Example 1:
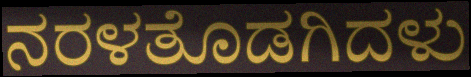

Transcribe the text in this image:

ನರಳತೊಡಗಿದಳು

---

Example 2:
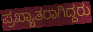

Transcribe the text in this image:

ಪ್ರಖ್ಯಾತರಾಗಿದ್ದರು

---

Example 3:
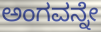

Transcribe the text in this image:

ಅಂಗವನ್ನೇ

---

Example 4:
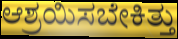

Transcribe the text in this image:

ಆಶ್ರಯಿಸಬೇಕಿತ್ತು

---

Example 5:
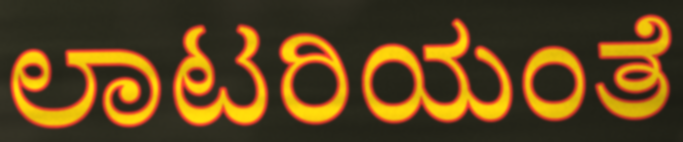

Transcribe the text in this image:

ಲಾಟರಿಯಂತೆ